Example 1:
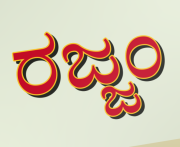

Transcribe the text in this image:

ರಜ್ಜಂ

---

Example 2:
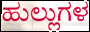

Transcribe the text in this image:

ಹುಲ್ಲುಗಳ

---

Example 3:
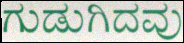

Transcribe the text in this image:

ಗುಡುಗಿದವು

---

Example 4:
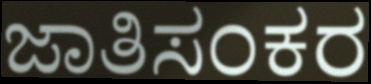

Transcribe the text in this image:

ಜಾತಿಸಂಕರ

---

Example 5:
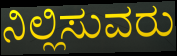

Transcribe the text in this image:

ನಿಲ್ಲಿಸುವರು